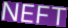
NEFT